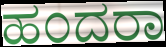
ಹಂದರಾ